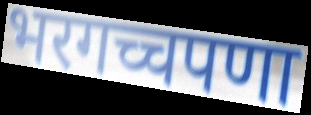
भरगच्चपणा